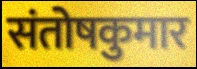
संतोषकुमार